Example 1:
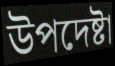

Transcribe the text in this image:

উপদেষ্টা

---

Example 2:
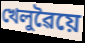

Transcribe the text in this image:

খেলুৱৈয়ে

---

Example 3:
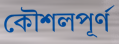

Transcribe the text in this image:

কৌশলপূৰ্ণ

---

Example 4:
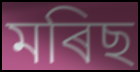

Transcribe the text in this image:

মৰিছ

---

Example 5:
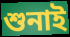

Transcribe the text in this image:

শুনাই